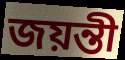
জয়ন্তী